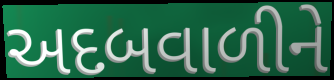
અદબવાળીને